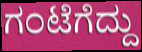
ಗಂಟೆಗೆದ್ದು